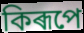
কিৰূপে